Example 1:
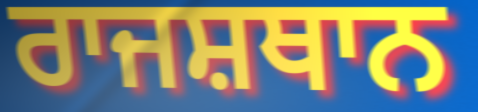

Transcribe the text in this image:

ਰਾਜਸ਼ਥਾਨ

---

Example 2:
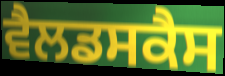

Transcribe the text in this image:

ਵੈਲਡਸਕੈਸ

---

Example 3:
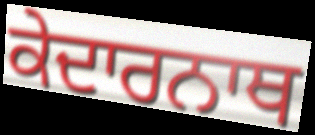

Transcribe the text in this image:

ਕੇਦਾਰਨਾਥ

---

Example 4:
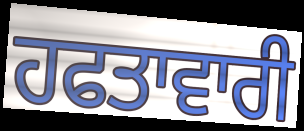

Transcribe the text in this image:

ਹਫਤਾਵਾਰੀ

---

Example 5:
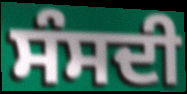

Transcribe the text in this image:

ਸੰਸਦੀ